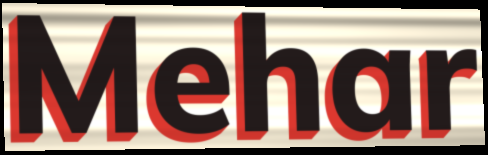
Mehar